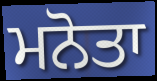
ਮਨੋਤਾ